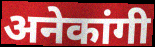
अनेकांगी